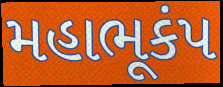
મહાભૂકંપ